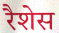
रैशेस